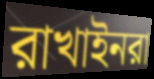
রাখাইনরা